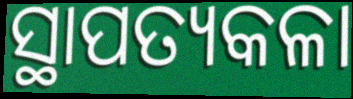
ସ୍ଥାପତ୍ୟକଳା